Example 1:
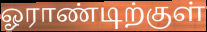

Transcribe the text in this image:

ஓராண்டிற்குள்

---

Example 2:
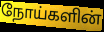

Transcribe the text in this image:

நோய்களின்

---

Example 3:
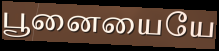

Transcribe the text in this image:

பூனையையே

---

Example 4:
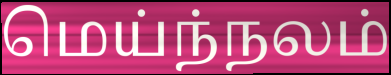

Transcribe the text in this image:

மெய்ந்நலம்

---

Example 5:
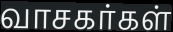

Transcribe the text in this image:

வாசகர்கள்